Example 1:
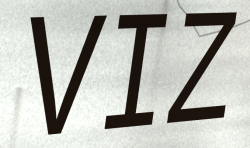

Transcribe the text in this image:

VIZ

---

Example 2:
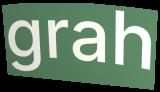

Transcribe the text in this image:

grah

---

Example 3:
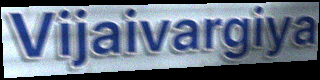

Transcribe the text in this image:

Vijaivargiya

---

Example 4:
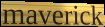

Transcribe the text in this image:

maverick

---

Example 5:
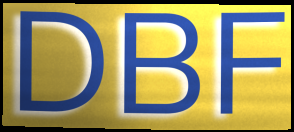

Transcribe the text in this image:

DBF